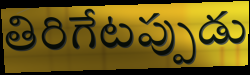
తిరిగేటప్పుడు